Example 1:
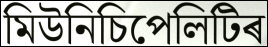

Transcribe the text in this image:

মিউনিচিপেলিটিৰ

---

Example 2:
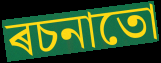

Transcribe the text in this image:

ৰচনাতো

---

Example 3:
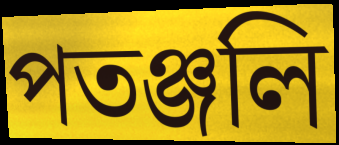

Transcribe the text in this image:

পতঞ্জলি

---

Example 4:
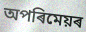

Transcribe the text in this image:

অপৰিমেয়ৰ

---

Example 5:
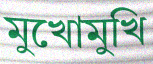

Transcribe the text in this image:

মুখোমুখি